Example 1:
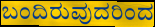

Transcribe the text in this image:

ಬಂದಿರುವುದರಿಂದ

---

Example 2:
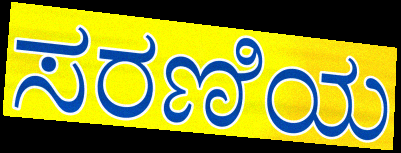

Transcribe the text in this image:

ಸರಣಿಯ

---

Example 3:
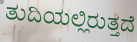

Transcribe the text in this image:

ತುದಿಯಲ್ಲಿರುತ್ತದೆ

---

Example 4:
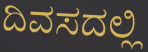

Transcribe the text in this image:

ದಿವಸದಲ್ಲಿ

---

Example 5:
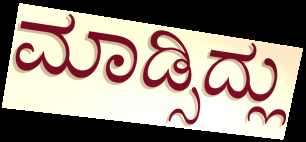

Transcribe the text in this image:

ಮಾಡ್ಸಿದ್ಲು